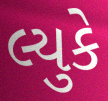
લ્યુકે